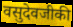
वसुदेवजीकी